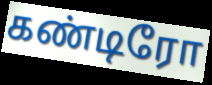
கண்டிரோ